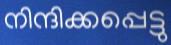
നിന്ദിക്കപ്പെട്ടു